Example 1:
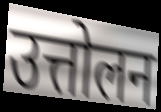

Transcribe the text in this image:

उत्तोलन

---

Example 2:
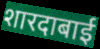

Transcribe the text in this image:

शारदाबाई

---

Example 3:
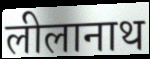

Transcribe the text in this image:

लीलानाथ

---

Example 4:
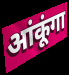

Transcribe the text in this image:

आंकूंगा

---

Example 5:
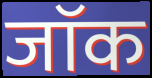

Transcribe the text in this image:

जॉक